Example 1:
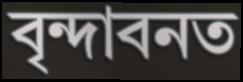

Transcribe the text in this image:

বৃন্দাবনত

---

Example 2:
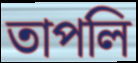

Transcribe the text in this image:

তাপলি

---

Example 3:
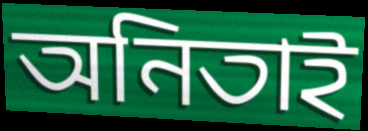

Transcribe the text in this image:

অনিতাই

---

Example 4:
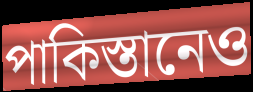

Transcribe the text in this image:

পাকিস্তানেও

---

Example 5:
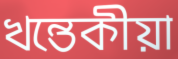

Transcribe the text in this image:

খন্তেকীয়া